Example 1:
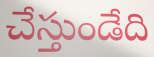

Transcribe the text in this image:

చేస్తుండేది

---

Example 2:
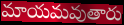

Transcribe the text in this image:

మాయమవుతారు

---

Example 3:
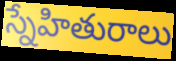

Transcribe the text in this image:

స్నేహితురాలు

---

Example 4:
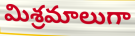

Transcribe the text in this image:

మిశ్రమాలుగా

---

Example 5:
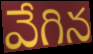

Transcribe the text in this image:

వేగిన